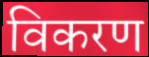
विकरण